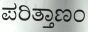
ಪರಿತ್ತಾಣಂ